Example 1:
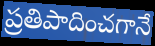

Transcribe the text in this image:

ప్రతిపాదించగానే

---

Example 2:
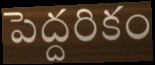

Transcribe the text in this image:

పెద్దరికం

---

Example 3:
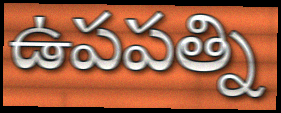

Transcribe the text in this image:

ఉపపత్ని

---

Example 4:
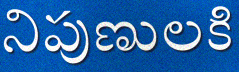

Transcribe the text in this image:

నిపుణులకి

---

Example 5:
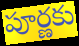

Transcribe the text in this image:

పూర్ణకు